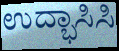
ಉದ್ಭಾಸಿಸಿ